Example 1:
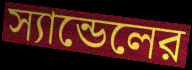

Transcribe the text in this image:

স্যান্ডেলের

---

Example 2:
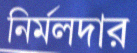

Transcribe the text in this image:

নির্মলদার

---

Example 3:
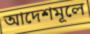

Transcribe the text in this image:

আদেশমূলে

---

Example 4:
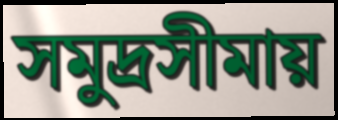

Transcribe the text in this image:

সমুদ্রসীমায়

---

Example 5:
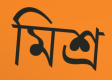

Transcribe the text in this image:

মিশ্র